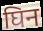
घिन